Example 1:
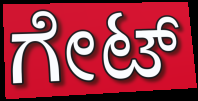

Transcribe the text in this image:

ಗೇಟ್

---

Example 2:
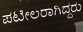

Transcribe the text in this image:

ಪಟೇಲರಾಗಿದ್ದರು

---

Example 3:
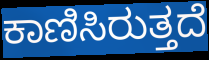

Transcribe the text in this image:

ಕಾಣಿಸಿರುತ್ತದೆ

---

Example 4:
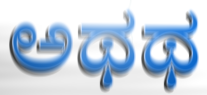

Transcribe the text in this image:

ಅಥಥ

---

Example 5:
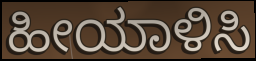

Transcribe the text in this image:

ಹೀಯಾಳಿಸಿ